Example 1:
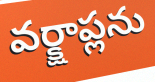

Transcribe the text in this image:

వర్క్షాప్లను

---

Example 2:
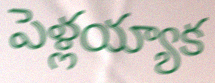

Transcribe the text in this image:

పెళ్లయ్యాక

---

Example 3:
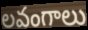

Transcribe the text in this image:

లవంగాలు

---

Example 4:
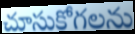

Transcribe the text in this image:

చూసుకోగలను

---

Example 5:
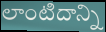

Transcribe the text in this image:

లాంటిదాన్ని